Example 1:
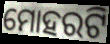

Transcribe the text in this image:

ମୋହରଟି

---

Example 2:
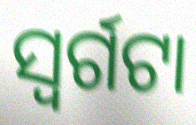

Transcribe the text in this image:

ସ୍ୱର୍ଗଟା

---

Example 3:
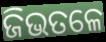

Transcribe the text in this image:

ଜିଭତଳେ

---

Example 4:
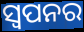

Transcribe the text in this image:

ସ୍ୱପନର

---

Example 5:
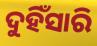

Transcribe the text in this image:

ଦୁହିଁସାରି